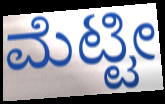
ಮೆಟ್ಟೀ